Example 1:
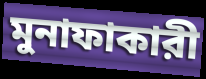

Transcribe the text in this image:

মুনাফাকারী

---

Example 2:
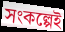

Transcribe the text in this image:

সংকল্পেই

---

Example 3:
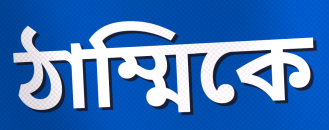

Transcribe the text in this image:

ঠাম্মিকে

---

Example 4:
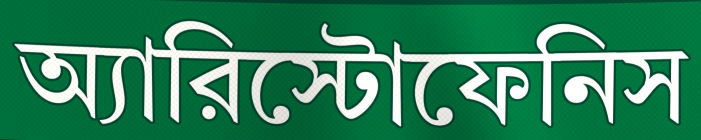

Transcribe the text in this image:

অ্যারিস্টোফেনিস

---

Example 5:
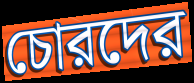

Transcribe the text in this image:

চোরদের